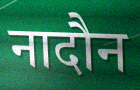
नादौन